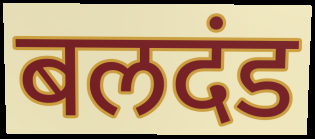
बलदंड